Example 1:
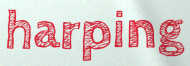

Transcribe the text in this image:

harping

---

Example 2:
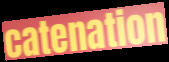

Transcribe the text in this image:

catenation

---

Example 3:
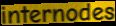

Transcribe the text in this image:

internodes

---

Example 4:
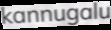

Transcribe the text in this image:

kannugalu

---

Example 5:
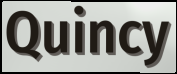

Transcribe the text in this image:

Quincy